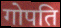
गोपति